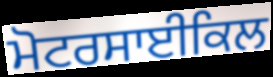
ਮੋਟਰਸਾਈਕਿਲ